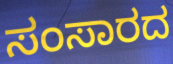
ಸಂಸಾರದ